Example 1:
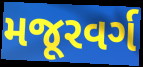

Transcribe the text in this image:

મજૂરવર્ગ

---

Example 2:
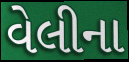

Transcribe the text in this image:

વેલીના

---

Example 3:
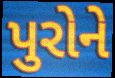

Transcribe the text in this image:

પુરોને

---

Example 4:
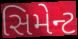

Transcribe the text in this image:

સિમેન્ટ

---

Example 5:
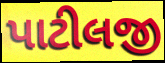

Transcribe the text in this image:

પાટીલજી